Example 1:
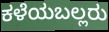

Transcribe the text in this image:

ಕಳೆಯಬಲ್ಲರು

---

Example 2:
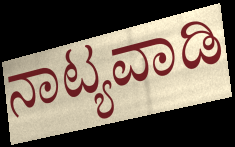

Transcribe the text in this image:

ನಾಟ್ಯವಾಡಿ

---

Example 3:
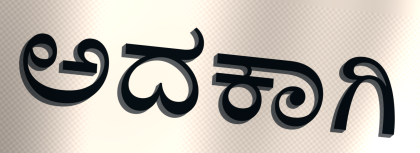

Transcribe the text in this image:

ಅದಕಾಗಿ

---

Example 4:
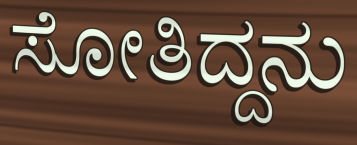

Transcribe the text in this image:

ಸೋತಿದ್ದನು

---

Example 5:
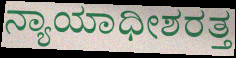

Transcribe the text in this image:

ನ್ಯಾಯಾಧೀಶರತ್ತ